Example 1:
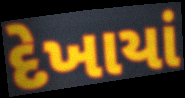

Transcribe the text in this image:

દેખાયાં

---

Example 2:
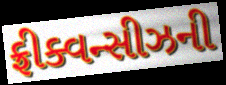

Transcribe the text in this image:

ફ્રીક્વન્સીઝની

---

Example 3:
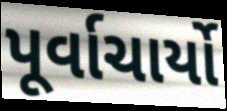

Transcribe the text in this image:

પૂર્વાચાર્યો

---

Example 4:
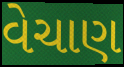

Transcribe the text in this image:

વેચાણ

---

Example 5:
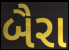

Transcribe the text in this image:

બૈરા